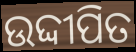
ଉଦ୍ଦୀପିତ